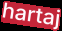
hartaj